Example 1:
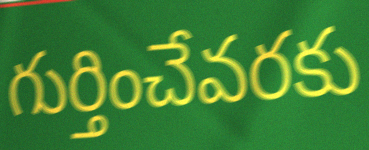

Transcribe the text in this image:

గుర్తించేవరకు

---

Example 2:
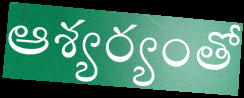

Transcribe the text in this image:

ఆశ్యర్యంతో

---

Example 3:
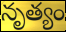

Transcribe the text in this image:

నృత్యం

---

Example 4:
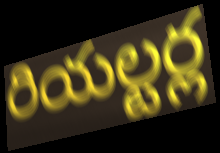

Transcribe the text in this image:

రియల్టర్ల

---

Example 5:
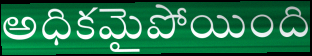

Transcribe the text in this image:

అధికమైపోయింది